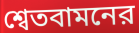
শ্বেতবামনের